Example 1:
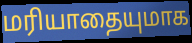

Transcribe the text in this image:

மரியாதையுமாக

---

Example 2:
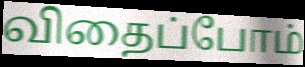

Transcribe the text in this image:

விதைப்போம்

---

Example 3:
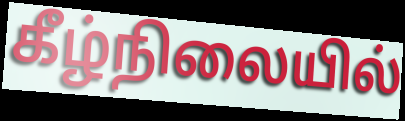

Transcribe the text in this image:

கீழ்நிலையில்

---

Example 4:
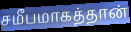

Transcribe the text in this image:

சமீபமாகத்தான்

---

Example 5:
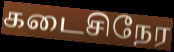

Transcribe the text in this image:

கடைசிநேர